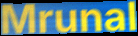
Mrunal